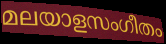
മലയാളസംഗീതം